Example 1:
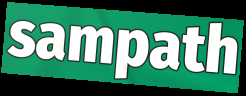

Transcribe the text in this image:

sampath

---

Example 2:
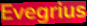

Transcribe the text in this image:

Evegrius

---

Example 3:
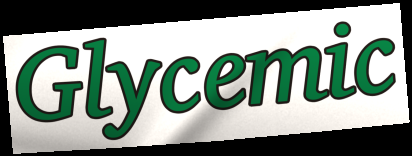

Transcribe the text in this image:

Glycemic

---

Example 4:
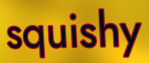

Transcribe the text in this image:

squishy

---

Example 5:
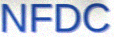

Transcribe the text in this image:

NFDC